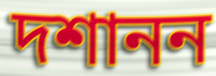
দশানন